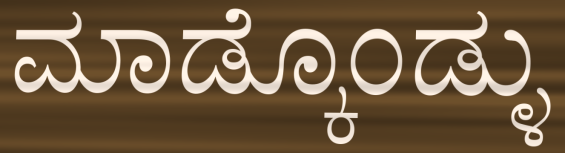
ಮಾಡ್ಕೊಂಡ್ಳು